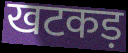
खटकड़